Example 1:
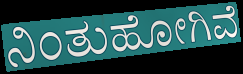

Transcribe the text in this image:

ನಿಂತುಹೋಗಿವೆ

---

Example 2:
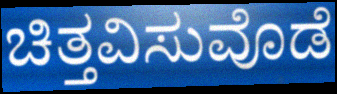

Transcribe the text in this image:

ಚಿತ್ತವಿಸುವೊಡೆ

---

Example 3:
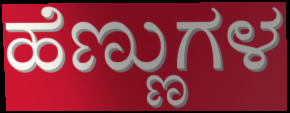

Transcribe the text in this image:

ಹೆಣ್ಣುಗಳ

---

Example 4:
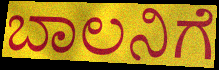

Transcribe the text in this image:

ಬಾಲನಿಗೆ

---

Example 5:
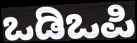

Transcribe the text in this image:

ಒಡಿಒಪಿ